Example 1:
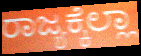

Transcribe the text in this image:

ರಾಜ್ಯಕ್ಕೆಲ್ಲಾ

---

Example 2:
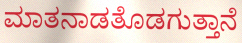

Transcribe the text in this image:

ಮಾತನಾಡತೊಡಗುತ್ತಾನೆ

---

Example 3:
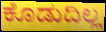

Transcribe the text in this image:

ಕೊಡುದಿಲ್ಲ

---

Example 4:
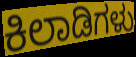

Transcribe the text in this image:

ಕಿಲಾಡಿಗಳು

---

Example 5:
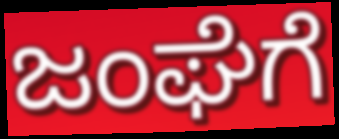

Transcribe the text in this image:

ಜಂಘೆಗೆ